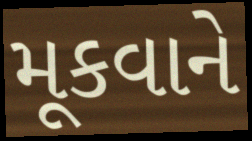
મૂકવાને